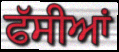
ਫੱਸੀਆਂ